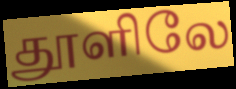
தூளிலே